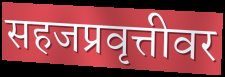
सहजप्रवृत्तीवर